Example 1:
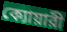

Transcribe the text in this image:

ক্যোয়ারী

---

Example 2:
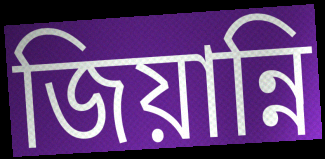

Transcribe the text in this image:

জিয়ান্নি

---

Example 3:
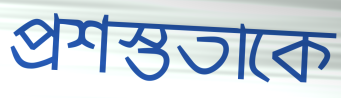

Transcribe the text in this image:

প্রশস্ততাকে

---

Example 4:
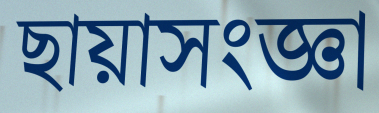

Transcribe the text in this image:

ছায়াসংজ্ঞা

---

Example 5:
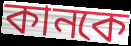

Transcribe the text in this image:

কানকে